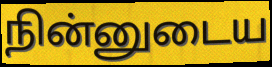
நின்னுடைய